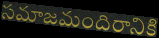
సమాజమందిరానికి